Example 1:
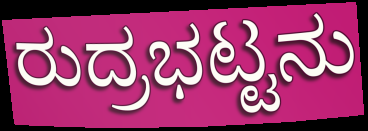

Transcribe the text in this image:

ರುದ್ರಭಟ್ಟನು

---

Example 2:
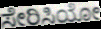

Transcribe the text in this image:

ಸೇರಿಸಿಯೋ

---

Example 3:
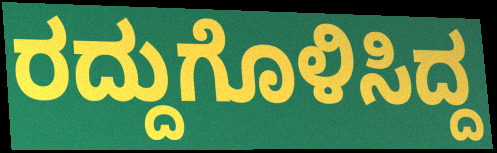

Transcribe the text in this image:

ರದ್ದುಗೊಳಿಸಿದ್ದ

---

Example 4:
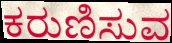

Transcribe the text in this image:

ಕರುಣಿಸುವ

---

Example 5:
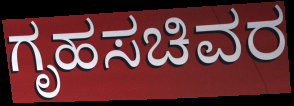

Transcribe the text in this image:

ಗೃಹಸಚಿವರ